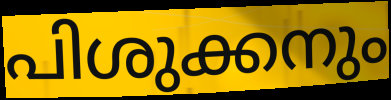
പിശുക്കനും